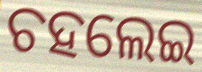
ଚହଲେଇ